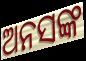
ଅନସଙ୍କ